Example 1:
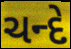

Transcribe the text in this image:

ચન્દે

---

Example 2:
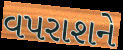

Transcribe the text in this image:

વપરાશને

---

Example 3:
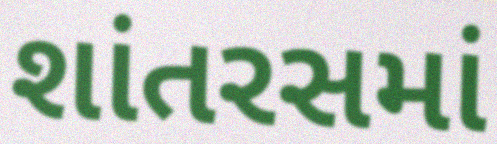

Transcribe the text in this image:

શાંતરસમાં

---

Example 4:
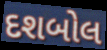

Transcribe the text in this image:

દશબોલ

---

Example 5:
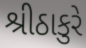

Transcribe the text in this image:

શ્રીઠાકુરે